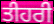
ਤੀਹਰੀ